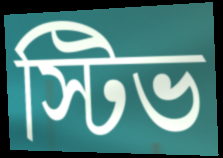
স্টিভ